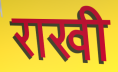
राखी